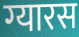
ग्यारस